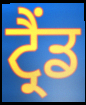
ਟ੍ਰੈਂਡ